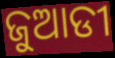
ଜୁଆଡୀ